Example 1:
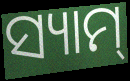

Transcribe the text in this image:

ସ୍ୟାମ୍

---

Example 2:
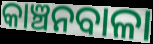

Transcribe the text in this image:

କାଞ୍ଚନବାଳା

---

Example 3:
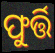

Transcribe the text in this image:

ଫୁର୍ତ୍ତି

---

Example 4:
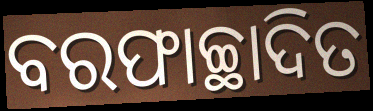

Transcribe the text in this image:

ବରଫାଚ୍ଛାଦିତ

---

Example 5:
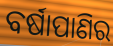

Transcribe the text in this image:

ବର୍ଷାପାଣିର